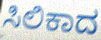
ಸಿಲಿಕಾದ